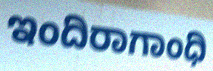
ಇಂದಿರಾಗಾಂಧಿ